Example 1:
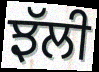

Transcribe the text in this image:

ਝੱਲੀ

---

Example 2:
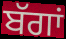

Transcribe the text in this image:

ਬੱਗਾਂ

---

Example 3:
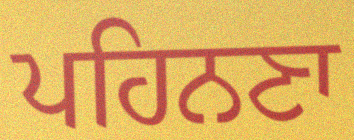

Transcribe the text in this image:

ਪਹਿਨਣਾ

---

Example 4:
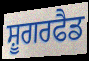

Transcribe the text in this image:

ਸ਼ੂਗਰਫੈਡ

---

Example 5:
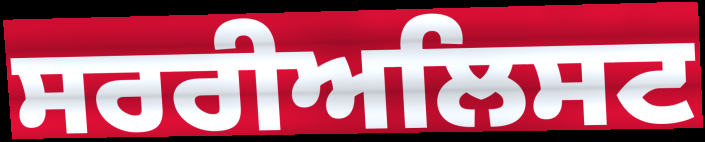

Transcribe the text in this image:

ਸਰਰੀਅਲਿਸਟ